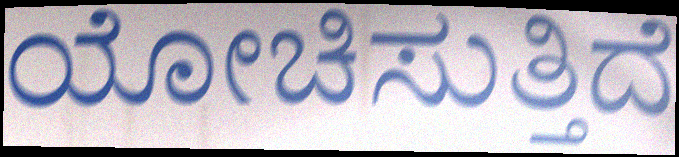
ಯೋಚಿಸುತ್ತಿದೆ